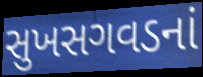
સુખસગવડનાં